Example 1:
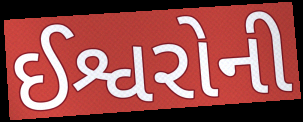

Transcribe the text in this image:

ઈશ્વરોની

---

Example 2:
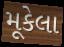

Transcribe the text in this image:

મૂકેલા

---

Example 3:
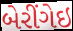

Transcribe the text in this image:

બેરીંગેઇ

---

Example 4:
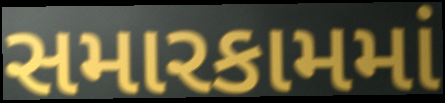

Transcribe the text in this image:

સમારકામમાં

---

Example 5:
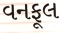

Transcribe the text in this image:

વનફૂલ